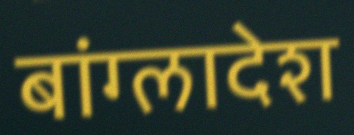
बांग्लादेश